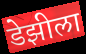
डेझीला